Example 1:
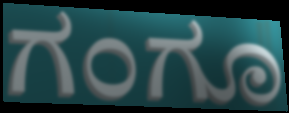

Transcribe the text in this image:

ಗಂಗೂ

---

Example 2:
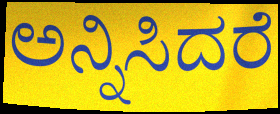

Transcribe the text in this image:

ಅನ್ನಿಸಿದರೆ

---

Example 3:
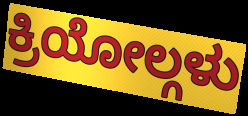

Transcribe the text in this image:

ಕ್ರಿಯೋಲ್ಗಳು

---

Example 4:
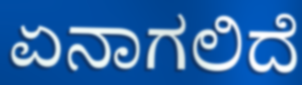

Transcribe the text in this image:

ಏನಾಗಲಿದೆ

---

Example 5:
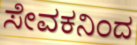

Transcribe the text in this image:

ಸೇವಕನಿಂದ